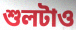
শুলটাও